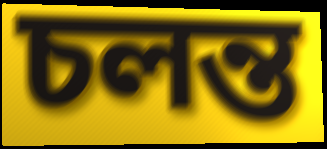
চলন্ত